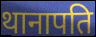
थानापति